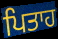
ਪਿਤਾਹ